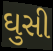
ઘુસી